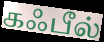
கஃபீல்